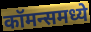
कॉमन्समध्ये